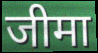
जीमा